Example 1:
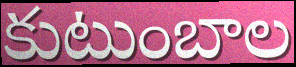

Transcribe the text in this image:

కుటుంబాల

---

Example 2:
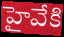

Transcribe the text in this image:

హైవేకి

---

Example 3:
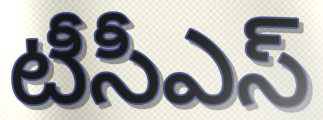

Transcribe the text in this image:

టీసీఎస్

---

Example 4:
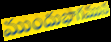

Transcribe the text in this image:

ముందుభాగమున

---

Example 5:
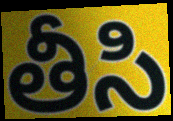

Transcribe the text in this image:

తీసి